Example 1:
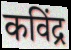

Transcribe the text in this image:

कविंद्र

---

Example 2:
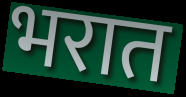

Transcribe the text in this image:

भरात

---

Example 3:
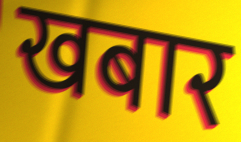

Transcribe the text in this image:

खबार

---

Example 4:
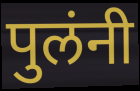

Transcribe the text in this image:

पुलंनी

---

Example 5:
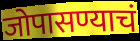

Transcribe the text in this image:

जोपासण्याचं